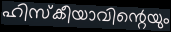
ഹിസ്കീയാവിന്റെയും